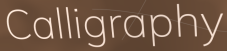
Calligraphy